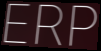
ERP